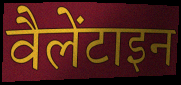
वैलेंटाइन